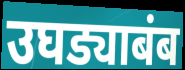
उघड्याबंब